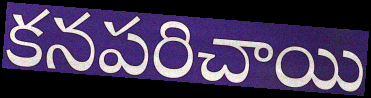
కనపరిచాయి